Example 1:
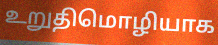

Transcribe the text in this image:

உறுதிமொழியாக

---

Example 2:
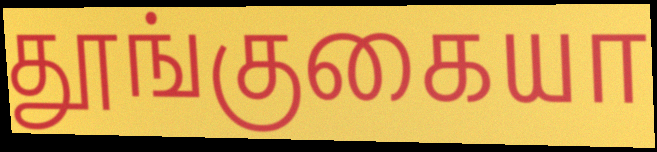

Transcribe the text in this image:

தூங்குகையா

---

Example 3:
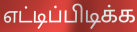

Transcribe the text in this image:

எட்டிப்பிடிக்க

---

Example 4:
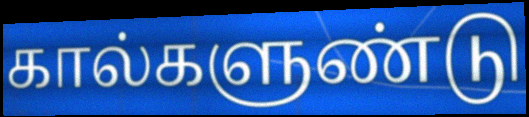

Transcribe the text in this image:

கால்களுண்டு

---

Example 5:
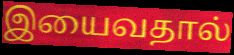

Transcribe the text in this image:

இயைவதால்